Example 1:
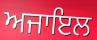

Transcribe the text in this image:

ਅਜਾਇਲ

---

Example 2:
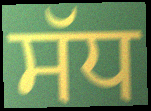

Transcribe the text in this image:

ਸੱਧ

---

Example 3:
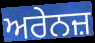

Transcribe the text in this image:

ਅਰੇਨਜ਼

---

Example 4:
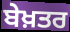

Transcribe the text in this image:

ਬੇਖ਼ਤਰ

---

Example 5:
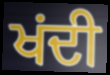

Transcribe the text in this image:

ਖਂਦੀ